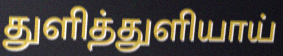
துளித்துளியாய்